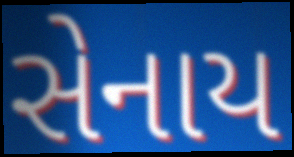
સેનાય